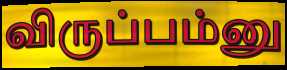
விருப்பம்னு